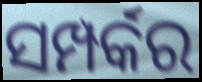
ସମ୍ପର୍କର